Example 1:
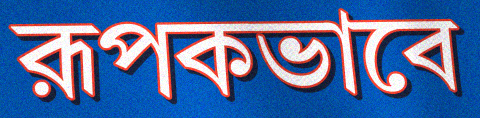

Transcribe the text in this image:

রূপকভাবে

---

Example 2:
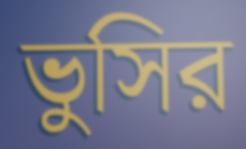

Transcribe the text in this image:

ভুসির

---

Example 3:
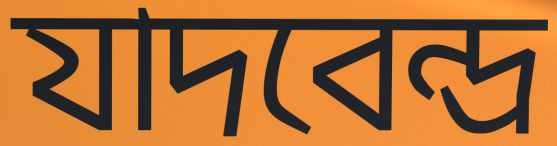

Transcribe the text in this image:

যাদবেন্দ্র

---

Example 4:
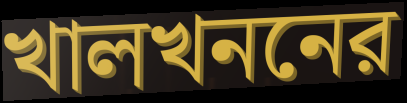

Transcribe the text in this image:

খালখননের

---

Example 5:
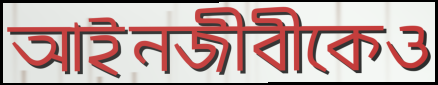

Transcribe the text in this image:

আইনজীবীকেও